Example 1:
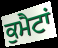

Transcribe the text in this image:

ਕੁਮੈਟਾਂ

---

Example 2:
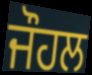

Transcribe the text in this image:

ਜੌਹਲ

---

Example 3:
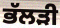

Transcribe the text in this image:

ਭੱਲੜੀ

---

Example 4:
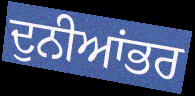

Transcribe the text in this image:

ਦੁਨੀਆਂਭਰ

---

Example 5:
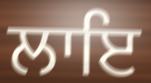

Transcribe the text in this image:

ਲਾਇ